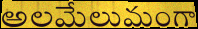
అలమేలుమంగా